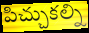
పిచ్చుకల్ని